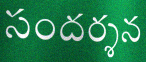
సందర్శన